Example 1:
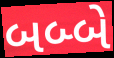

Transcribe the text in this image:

બબ્બે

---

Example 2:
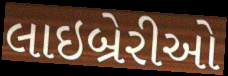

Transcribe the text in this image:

લાઇબ્રેરીઓ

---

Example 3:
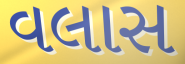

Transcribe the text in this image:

વલાસ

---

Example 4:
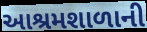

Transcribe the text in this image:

આશ્રમશાળાની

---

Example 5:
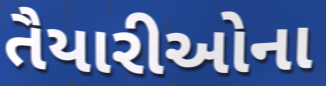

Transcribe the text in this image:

તૈયારીઓના